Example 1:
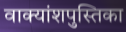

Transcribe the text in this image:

वाक्यांशपुस्तिका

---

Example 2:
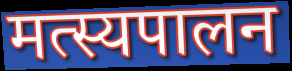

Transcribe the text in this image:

मत्स्यपालन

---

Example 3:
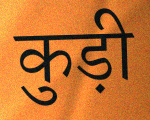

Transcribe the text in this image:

कुड़ी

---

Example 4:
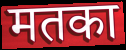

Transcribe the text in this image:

मतका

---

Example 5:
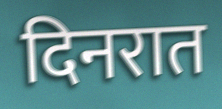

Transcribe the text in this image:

दिनरात